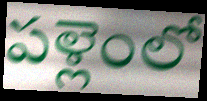
పళ్లెంలో